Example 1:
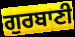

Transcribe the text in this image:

ਗੁਰਬਾਣੀ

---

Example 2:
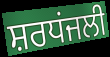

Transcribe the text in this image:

ਸ਼ਰਧਂਜਲੀ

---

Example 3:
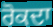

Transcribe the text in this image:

ਰੋਕਦਾ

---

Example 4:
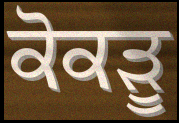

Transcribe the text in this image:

ਕੋਕੜੂ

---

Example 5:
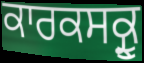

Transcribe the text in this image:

ਕਾਰਕਸਕ੍ਰੂ